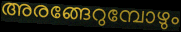
അരങ്ങേറുമ്പോഴും